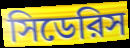
সিডেরিস